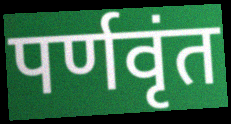
पर्णवृंत